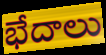
భేదాలు